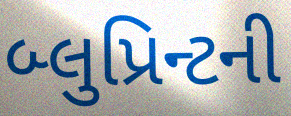
બ્લુપ્રિન્ટની